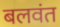
बलवंत